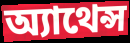
অ্যাথেন্স